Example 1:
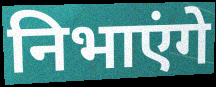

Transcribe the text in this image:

निभाएंगे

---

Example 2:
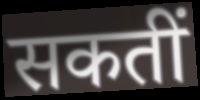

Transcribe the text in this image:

सकतीं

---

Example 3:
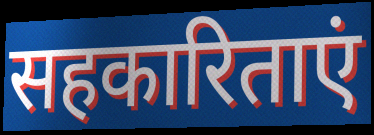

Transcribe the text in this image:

सहकारिताएं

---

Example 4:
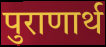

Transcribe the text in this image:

पुराणार्थ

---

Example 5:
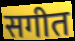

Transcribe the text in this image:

सगीत